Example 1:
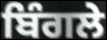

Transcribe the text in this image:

ਬਿੰਗਲੇ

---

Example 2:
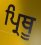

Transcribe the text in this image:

ਪ੍ਰਿਥੂ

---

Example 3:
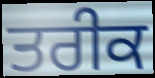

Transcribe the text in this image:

ਤਰੀਕ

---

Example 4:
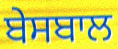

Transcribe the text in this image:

ਬੇਸਬਾਲ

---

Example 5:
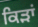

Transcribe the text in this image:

ਕਿੜਾਂ